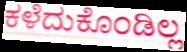
ಕಳೆದುಕೊಂಡಿಲ್ಲ